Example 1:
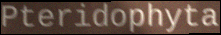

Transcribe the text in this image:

Pteridophyta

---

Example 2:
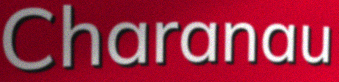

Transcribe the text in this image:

Charanau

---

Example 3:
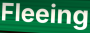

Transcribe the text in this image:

Fleeing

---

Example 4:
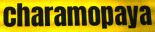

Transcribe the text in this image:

charamopaya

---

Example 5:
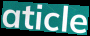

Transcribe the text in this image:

aticle